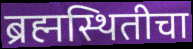
ब्रह्मस्थितीचा